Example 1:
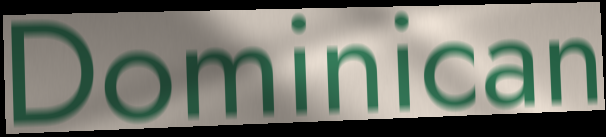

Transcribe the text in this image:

Dominican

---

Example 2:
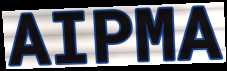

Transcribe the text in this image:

AIPMA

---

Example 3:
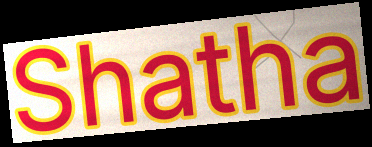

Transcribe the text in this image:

Shatha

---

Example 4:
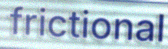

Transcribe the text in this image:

frictional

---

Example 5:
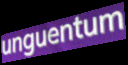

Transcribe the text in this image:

unguentum